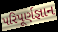
પરિપૂર્ણજ્ઞાન